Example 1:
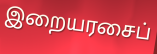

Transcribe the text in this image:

இறையரசைப்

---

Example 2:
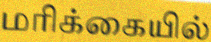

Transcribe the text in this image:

மரிக்கையில்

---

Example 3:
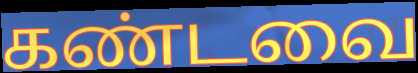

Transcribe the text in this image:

கண்டவை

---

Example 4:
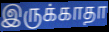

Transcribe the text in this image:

இருக்காதா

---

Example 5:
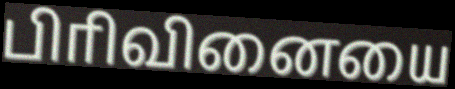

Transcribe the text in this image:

பிரிவினையை